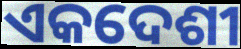
ଏକଦେଶୀ